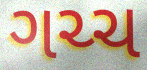
ગચ્ચ